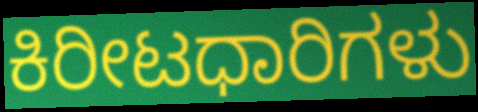
ಕಿರೀಟಧಾರಿಗಳು